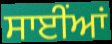
ਸਾਈਂਆਂ